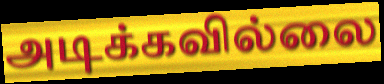
அடிக்கவில்லை